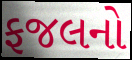
ફજલનો